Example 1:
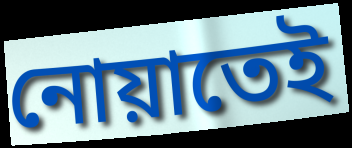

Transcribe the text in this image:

নোয়াতেই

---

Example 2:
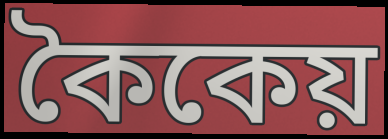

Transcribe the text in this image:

কৈকেয়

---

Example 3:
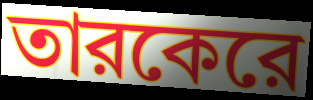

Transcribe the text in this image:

তারকেরে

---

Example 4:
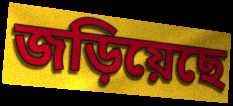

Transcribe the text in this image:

জড়িয়েছে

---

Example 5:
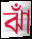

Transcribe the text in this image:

ঝাঁ